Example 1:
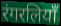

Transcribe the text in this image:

रंगरलियाँ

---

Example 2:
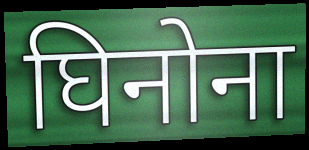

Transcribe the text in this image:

घिनोना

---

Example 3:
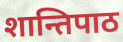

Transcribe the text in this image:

शान्तिपाठ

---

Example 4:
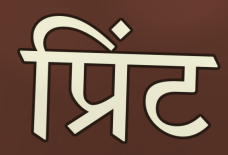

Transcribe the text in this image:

प्रिंट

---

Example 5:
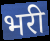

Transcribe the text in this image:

भरी